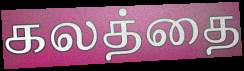
கலத்தை